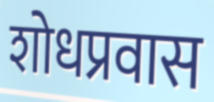
शोधप्रवास